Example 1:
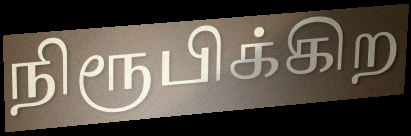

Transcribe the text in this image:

நிரூபிக்கிற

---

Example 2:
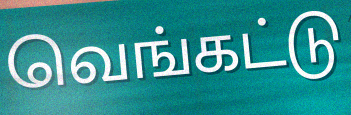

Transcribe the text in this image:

வெங்கட்டு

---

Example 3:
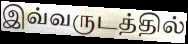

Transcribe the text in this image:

இவ்வருடத்தில்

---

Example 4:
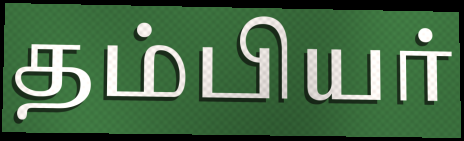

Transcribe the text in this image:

தம்பியர்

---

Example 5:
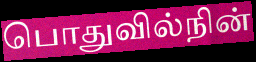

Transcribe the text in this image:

பொதுவில்நின்